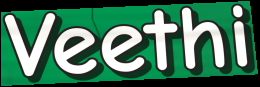
Veethi